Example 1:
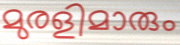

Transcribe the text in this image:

മുരളിമാരും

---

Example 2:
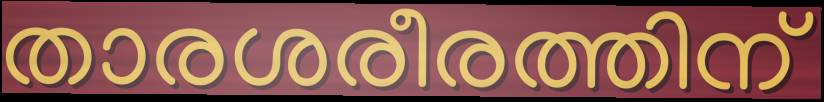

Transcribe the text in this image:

താരശരീരത്തിന്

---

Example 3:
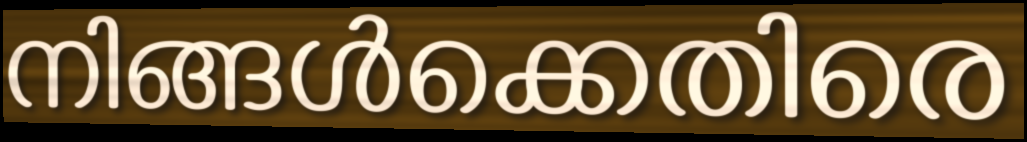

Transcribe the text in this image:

നിങ്ങൾക്കെതിരെ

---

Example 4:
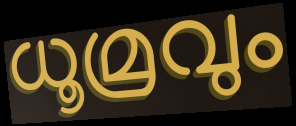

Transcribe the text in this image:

ധൂമ്രവും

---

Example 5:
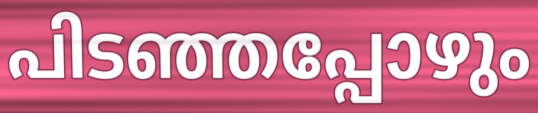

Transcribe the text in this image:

പിടഞ്ഞപ്പോഴും